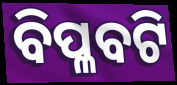
ବିପ୍ଳବଟି